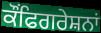
ਕੌਂਫਿਗਰੇਸ਼ਨਾਂ